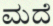
ಮದೆ